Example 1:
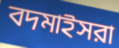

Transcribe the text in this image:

বদমাইসরা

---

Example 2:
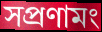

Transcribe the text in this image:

সপ্রণামং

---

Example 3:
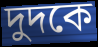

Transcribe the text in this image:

দুদকে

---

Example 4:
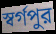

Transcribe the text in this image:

স্বর্গপুর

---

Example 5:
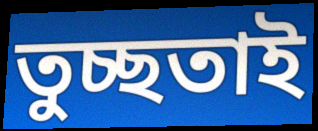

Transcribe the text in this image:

তুচ্ছতাই